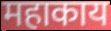
महाकाय